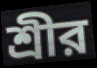
শ্রীর